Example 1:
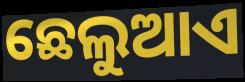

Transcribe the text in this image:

ଛେଲୁଆଏ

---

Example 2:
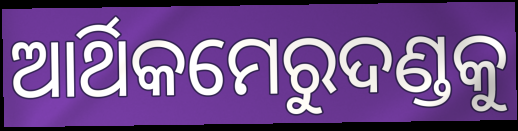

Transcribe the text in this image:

ଆର୍ଥିକମେରୁଦଣ୍ଡକୁ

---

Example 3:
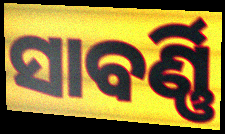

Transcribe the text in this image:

ସାବର୍ଣ୍ଣି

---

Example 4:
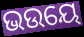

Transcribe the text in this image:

ଭଉୟେ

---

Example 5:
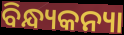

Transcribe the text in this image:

ବିନ୍ଧ୍ୟକନ୍ୟା